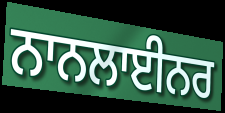
ਨਾਨਲਾਈਨਰ